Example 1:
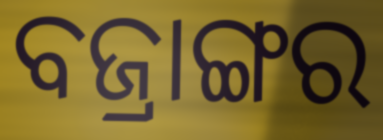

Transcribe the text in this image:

ବଜ୍ରାଙ୍ଗର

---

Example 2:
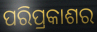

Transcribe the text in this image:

ପରିପ୍ରକାଶର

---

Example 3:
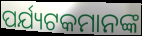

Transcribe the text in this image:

ପର୍ଯ୍ୟଟକମାନଙ୍କ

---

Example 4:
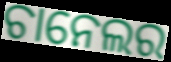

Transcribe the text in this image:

ଚାନେଲର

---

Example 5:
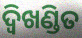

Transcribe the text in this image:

ଦ୍ଵିଖଣ୍ଡିତ